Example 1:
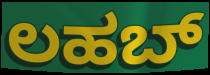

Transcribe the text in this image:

ಲಹಬ್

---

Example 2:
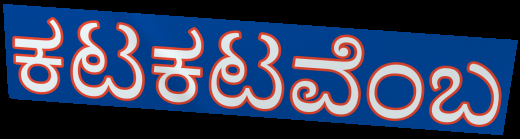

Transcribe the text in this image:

ಕಟಕಟವೆಂಬ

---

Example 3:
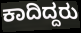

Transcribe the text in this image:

ಕಾದಿದ್ದರು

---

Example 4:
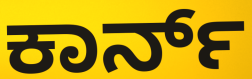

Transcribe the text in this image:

ಕಾರ್ನ್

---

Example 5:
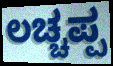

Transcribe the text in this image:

ಲಚ್ಚಪ್ಪ